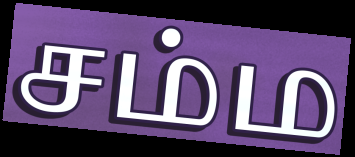
சம்ம